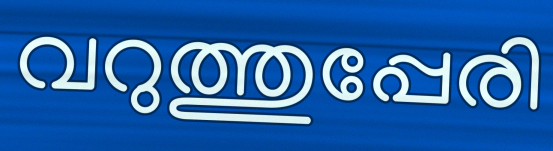
വറുത്തുപ്പേരി